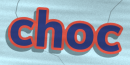
choc